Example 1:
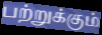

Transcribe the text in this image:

பற்றுக்கும்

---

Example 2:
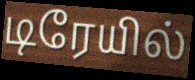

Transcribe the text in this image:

டிரேயில்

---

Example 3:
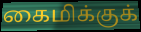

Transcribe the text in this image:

கைமிக்குக்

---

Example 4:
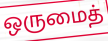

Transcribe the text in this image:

ஒருமைத்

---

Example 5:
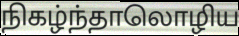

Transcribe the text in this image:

நிகழ்ந்தாலொழிய